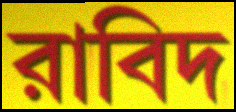
রাবিদ